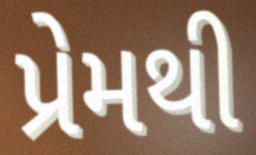
પ્રેમથી